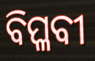
ବିପ୍ଳବୀ